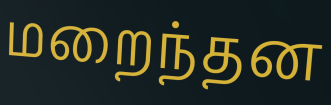
மறைந்தன